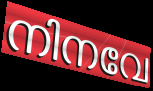
നിനവേ